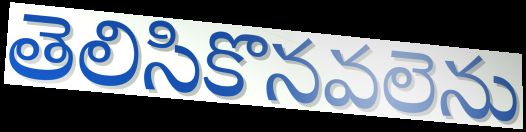
తెలిసికొనవలెను